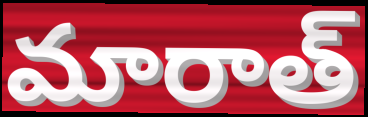
మారాత్